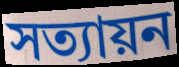
সত্যায়ন